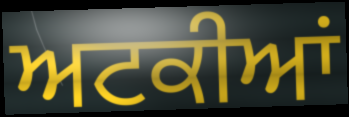
ਅਟਕੀਆਂ